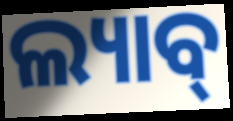
ଲ୍ୟାବ୍